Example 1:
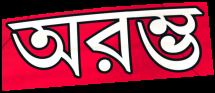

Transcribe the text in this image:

অরম্ভ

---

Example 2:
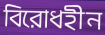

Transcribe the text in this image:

বিরোধহীন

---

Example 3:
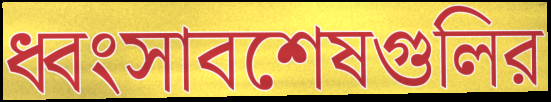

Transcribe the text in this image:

ধ্বংসাবশেষগুলির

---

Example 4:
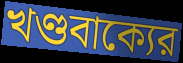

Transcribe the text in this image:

খণ্ডবাক্যের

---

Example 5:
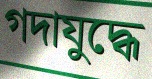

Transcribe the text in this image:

গদাযুদ্ধে